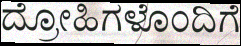
ದ್ರೋಹಿಗಳೊಂದಿಗೆ